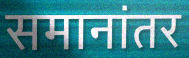
समानांतर